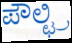
ಪೌಲ್ಟ್ರಿ